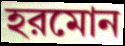
হরমোন